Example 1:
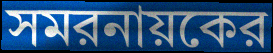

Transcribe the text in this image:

সমরনায়কের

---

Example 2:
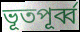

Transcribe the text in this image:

ভূতপূর্ব্ব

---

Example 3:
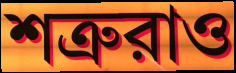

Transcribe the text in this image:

শত্রুরাও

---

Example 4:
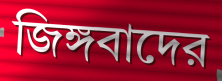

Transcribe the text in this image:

জিঙ্গবাদের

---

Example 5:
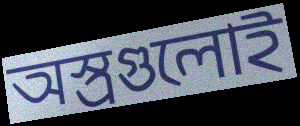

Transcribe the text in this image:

অস্ত্রগুলোই